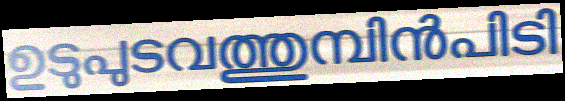
ഉടുപുടവത്തുമ്പിൻപിടി